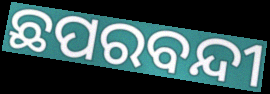
ଛପରବନ୍ଦୀ